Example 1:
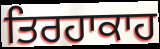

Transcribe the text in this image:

ਤਿਰਹਾਕਾਹ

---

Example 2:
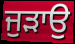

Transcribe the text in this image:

ਜੁੜਾਉ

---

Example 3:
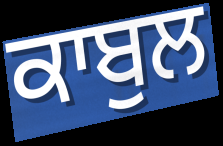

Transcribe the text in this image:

ਕਾਬੁਲ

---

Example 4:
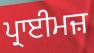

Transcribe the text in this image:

ਪ੍ਰਾਈਮਜ਼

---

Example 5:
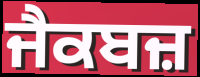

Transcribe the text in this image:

ਜੈਕਬਜ਼